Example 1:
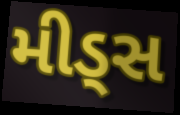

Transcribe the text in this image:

મીડ્સ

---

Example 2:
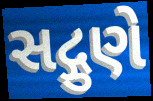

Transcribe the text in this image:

સદ્ગુણે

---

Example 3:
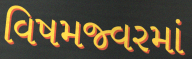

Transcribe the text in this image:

વિષમજ્વરમાં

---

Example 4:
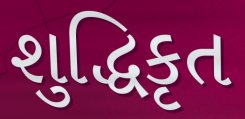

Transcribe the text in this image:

શુદ્ધિકૃત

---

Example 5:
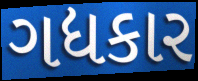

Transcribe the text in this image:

ગદ્યકાર